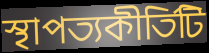
স্থাপত্যকীর্তিটি